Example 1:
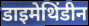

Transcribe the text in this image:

डाइमेथिंडीन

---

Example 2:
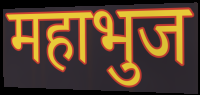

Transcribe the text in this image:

महाभुज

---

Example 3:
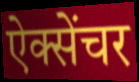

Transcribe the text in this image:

ऐक्सेंचर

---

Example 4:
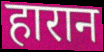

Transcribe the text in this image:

हारान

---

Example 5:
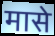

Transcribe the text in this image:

मासे